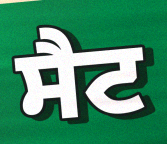
ਸੈਟ